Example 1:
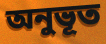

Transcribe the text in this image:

অনুভূত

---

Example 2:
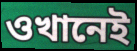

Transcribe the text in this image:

ওখানেই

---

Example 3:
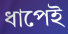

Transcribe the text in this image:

ধাপেই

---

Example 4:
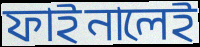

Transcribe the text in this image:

ফাইনালেই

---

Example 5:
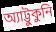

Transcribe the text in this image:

অ্যাট্টুকুনি